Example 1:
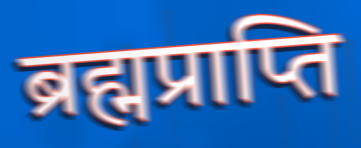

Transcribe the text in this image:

ब्रह्मप्राप्ति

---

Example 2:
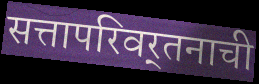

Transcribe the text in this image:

सत्तापरिवर्तनाची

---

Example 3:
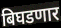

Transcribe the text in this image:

बिघडणार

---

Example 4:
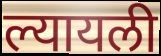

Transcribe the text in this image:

ल्यायली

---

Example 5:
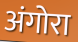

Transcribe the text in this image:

अंगोरा